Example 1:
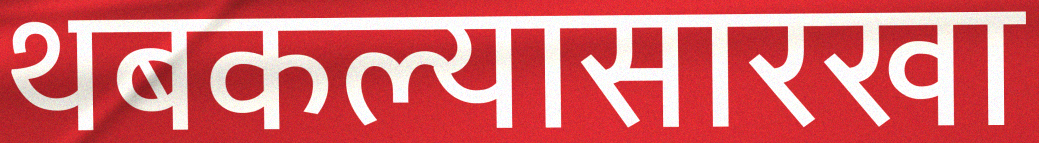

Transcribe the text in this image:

थबकल्यासारखा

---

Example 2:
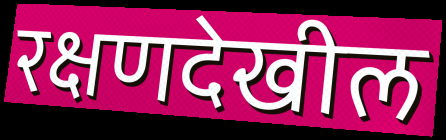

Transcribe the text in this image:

रक्षणदेखील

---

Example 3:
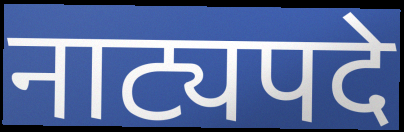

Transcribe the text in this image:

नाट्यपदे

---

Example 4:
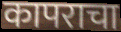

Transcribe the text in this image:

कापराचा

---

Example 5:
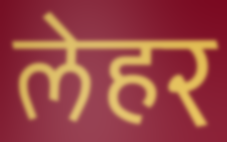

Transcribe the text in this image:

लेहर